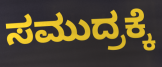
ಸಮುದ್ರಕ್ಕೆ